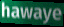
hawaye